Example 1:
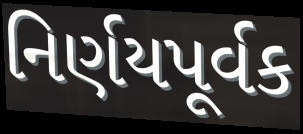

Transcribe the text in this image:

નિર્ણયપૂર્વક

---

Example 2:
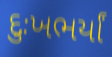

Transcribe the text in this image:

દુઃખભર્યાં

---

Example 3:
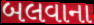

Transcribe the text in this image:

બલવાના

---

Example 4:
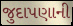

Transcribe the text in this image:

જુદાપણાની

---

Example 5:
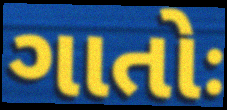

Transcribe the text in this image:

ગાતોઃ